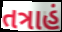
તત્રાહં